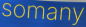
somany